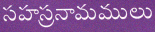
సహస్రనామములు